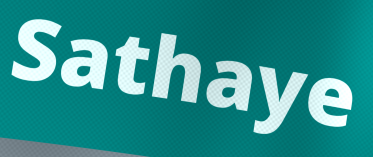
Sathaye